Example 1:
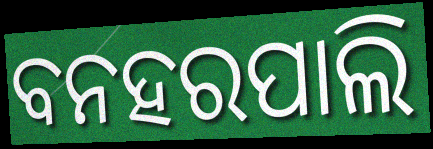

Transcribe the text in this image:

ବନହରପାଲି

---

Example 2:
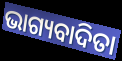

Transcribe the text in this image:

ଭାଗ୍ୟବାଦିତା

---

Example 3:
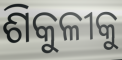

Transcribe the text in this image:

ଶିକୁଳୀକୁ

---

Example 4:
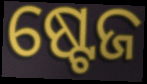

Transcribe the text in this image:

ଷ୍ଟେଜ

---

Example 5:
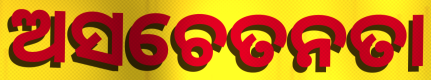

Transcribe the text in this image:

ଅସଚେତନତା